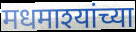
मधमाश्‍यांच्या